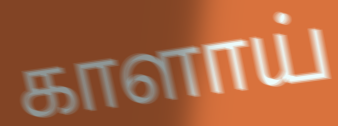
காளாய்